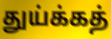
துய்க்கத்